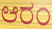
ಆರಂ